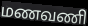
மணவணி